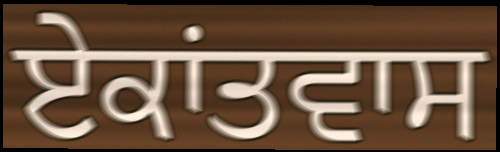
ਏਕਾਂਤਵਾਸ